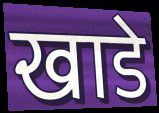
खाडे